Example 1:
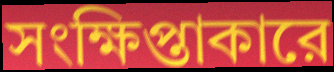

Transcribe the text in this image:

সংক্ষিপ্তাকারে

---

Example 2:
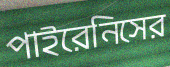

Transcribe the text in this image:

পাইরেনিসের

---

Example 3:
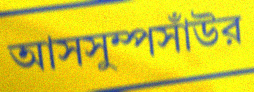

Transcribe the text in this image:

আসসুম্পসাঁউর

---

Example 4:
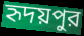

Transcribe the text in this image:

হৃদয়পুর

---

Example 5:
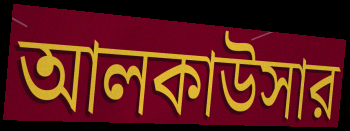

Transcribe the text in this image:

আলকাউসার